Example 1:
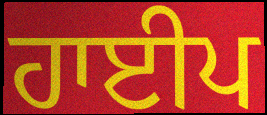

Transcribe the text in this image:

ਹਾਈਪ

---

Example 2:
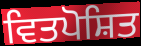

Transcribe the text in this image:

ਵਿਤਪੋਸ਼ਿਤ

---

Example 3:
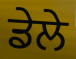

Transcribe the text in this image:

ਡੇਲੇ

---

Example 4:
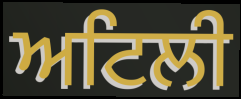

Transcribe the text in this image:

ਅਟਿਲੀ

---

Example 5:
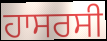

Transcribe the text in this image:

ਹਾਸਰਸੀ